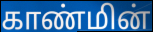
காண்மின்